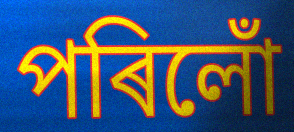
পৰিলোঁ